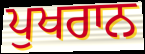
ਪੁਖਰਾਨ